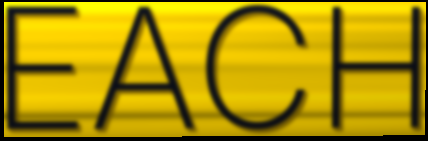
EACH